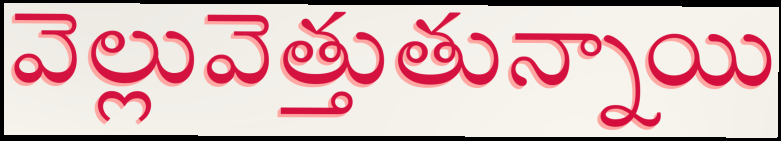
వెల్లువెత్తుతున్నాయి